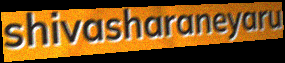
shivasharaneyaru